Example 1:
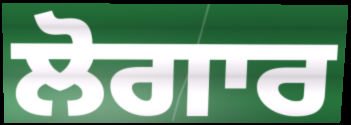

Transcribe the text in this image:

ਲੋਗਾਰ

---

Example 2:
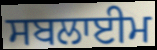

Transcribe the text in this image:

ਸਬਲਾਈਮ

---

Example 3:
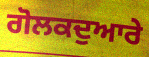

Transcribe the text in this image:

ਗੋਲਕਦੁਆਰੇ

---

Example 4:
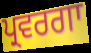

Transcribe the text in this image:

ਪ੍ਰਵਰਗਾ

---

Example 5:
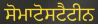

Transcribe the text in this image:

ਸੋਮਾਟੋਸਟੈਟੀਨ